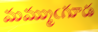
మమ్ముఁగూడ